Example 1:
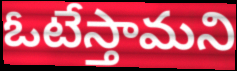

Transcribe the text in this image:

ఓటేస్తామని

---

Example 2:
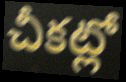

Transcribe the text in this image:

చీకట్లో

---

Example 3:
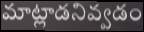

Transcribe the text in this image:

మాట్లాడనివ్వడం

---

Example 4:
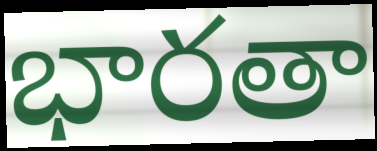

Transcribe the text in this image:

భారతా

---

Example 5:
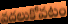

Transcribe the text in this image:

వదలుకోవటం